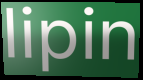
lipin